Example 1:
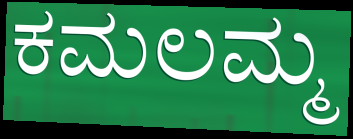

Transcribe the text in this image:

ಕಮಲಮ್ಮ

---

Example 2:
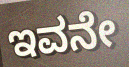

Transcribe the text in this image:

ಇವನೇ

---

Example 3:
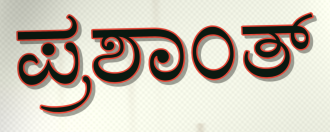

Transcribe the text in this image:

ಪ್ರಶಾಂತ್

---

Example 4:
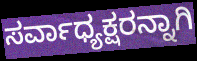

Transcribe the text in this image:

ಸರ್ವಾಧ್ಯಕ್ಷರನ್ನಾಗಿ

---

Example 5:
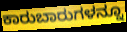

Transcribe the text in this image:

ಕಾರುಬಾರುಗಳನ್ನೂ